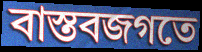
বাস্তবজগতে